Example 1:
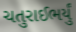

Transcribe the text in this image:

ચતુરાઈભર્યું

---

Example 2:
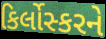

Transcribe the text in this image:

કિર્લોસ્કરને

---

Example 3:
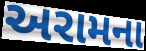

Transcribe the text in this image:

અરામના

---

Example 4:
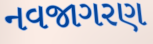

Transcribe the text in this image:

નવજાગરણ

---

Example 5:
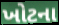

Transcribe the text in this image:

ખોટના